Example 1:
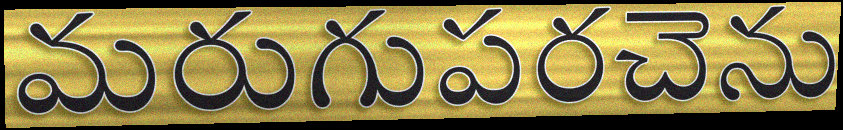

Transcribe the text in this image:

మరుగుపరచెను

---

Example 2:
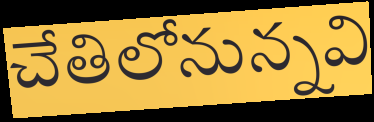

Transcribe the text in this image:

చేతిలోనున్నవి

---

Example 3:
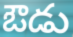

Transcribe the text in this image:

ఔడు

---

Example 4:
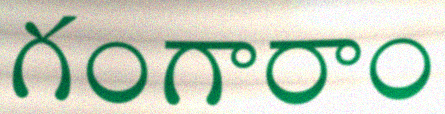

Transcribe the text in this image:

గంగారాం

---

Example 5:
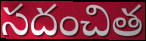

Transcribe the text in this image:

సదంచిత